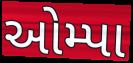
ઓમ્પા